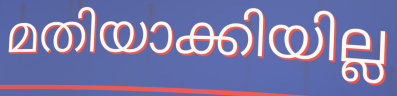
മതിയാക്കിയില്ല